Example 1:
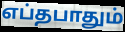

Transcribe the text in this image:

எப்தபாதும்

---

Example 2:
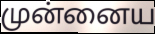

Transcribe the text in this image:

முன்னைய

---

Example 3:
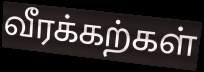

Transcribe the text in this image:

வீரக்கற்கள்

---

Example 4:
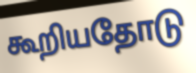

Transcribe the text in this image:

கூறியதோடு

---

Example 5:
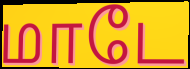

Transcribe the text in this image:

மாடே